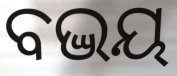
ବଦ୍ଭୟ